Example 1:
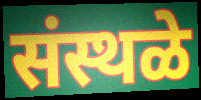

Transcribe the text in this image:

संस्थळे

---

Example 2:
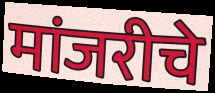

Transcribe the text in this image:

मांजरीचे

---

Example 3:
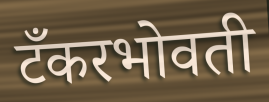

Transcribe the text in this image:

टँकरभोवती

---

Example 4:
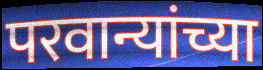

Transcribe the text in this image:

परवान्यांच्या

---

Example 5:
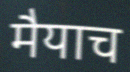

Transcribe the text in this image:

मैयाच